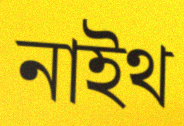
নাইথ